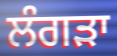
ਲੰਗੜਾ